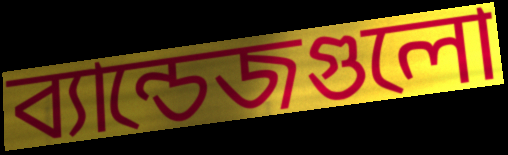
ব্যান্ডেজগুলো